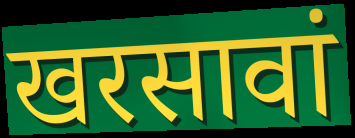
खरसावां